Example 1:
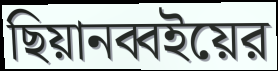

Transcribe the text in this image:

ছিয়ানব্বইয়ের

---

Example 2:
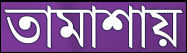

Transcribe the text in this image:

তামাশায়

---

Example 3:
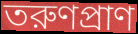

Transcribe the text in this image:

তরুণপ্রাণ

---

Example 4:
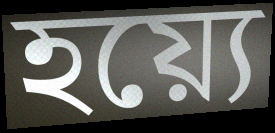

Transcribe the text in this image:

হয়্যে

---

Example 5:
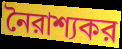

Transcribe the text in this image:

নৈরাশ্যকর